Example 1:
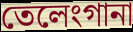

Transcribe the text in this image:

তেলেংগানা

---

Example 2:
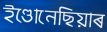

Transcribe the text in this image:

ইণ্ডোনেছিয়াৰ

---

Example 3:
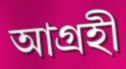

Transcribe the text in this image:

আগ্ৰহী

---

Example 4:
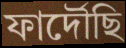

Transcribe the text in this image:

ফাৰ্দৌছি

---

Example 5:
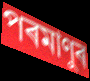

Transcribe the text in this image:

পৰমাণুৰ